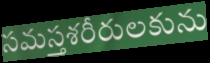
సమస్తశరీరులకును